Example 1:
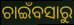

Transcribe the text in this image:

ଚାଇଁବସାରୁ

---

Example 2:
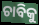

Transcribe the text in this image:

ଚାବିକୁ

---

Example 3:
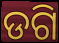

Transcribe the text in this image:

ଡଗି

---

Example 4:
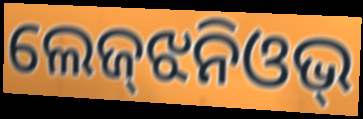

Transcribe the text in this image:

ଲେଜ୍‌ଝନିଓଭ୍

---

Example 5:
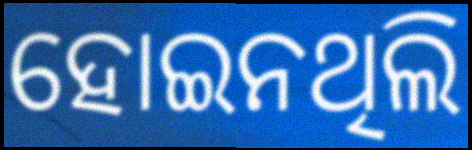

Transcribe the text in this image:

ହୋଇନଥିଲି